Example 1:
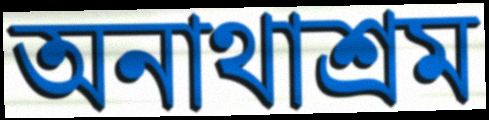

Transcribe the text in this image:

অনাথাশ্রম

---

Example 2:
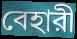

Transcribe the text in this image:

বেহারী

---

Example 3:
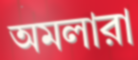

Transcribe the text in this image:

অমলারা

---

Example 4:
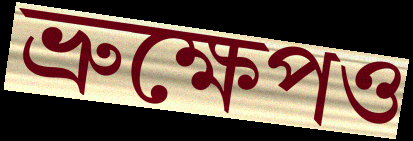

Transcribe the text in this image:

ভ্রুক্ষেপও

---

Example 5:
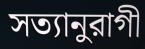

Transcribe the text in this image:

সত্যানুরাগী